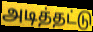
அடித்தட்டு